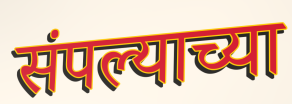
संपल्याच्या